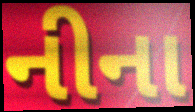
નીના